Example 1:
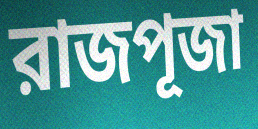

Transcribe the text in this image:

রাজপূজা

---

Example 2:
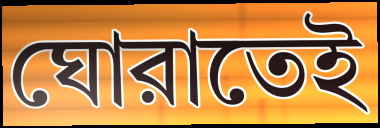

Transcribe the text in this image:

ঘোরাতেই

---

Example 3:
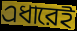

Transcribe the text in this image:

এধারেই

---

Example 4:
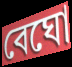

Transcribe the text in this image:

বেঘো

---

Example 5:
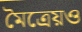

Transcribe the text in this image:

মৈত্রেয়ও